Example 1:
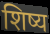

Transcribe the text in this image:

शिष्य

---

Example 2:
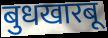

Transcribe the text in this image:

बुधखारबू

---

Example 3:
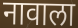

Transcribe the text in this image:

नावाला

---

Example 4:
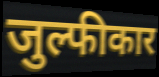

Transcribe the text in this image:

जुल्फीकार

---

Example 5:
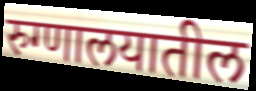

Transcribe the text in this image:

रुग्णालयातील